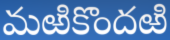
మఱికొందఱి